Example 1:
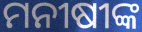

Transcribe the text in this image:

ମନୀଷୀଙ୍କ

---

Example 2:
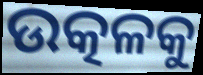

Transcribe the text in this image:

ଉତ୍କଳକୁ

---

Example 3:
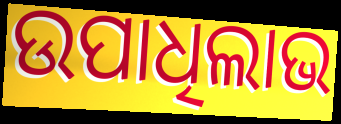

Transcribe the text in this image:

ଉପାଧିଲାଭ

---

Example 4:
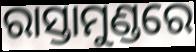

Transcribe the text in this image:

ରାସ୍ତାମୁଣ୍ଡରେ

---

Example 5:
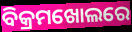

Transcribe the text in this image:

ବିକ୍ରମଖୋଲରେ